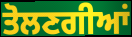
ਤੋਲਣਗੀਆਂ